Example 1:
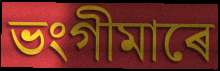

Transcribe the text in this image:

ভংগীমাৰে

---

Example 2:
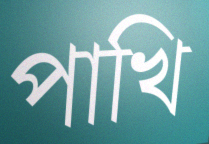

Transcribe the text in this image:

পাখি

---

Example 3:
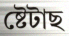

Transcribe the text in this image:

ষ্টেটাছ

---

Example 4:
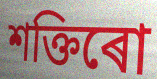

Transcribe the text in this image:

শক্তিৰো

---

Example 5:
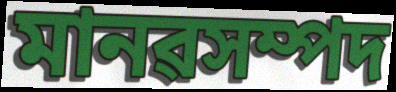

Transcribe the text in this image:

মানৱসম্পদ